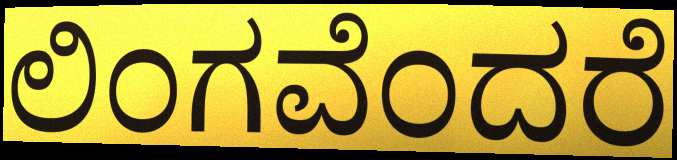
ಲಿಂಗವೆಂದರೆ